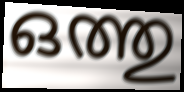
ഒത്തു